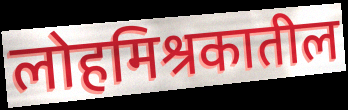
लोहमिश्रकातील